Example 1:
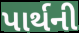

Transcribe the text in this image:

પાર્થની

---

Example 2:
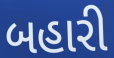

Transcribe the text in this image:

બહારી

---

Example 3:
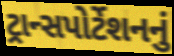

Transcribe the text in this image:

ટ્રાન્સપોર્ટેશનનું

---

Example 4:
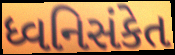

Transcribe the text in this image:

ધ્વનિસંકેત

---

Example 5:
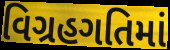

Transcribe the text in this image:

વિગ્રહગતિમાં